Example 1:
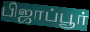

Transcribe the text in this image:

பிஜாப்பூர்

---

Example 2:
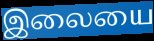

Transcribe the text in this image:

இலையை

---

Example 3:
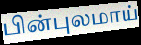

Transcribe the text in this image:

பின்புலமாய்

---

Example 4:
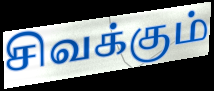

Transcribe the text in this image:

சிவக்கும்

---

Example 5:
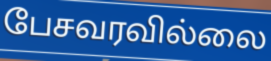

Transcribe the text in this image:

பேசவரவில்லை